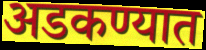
अडकण्यात